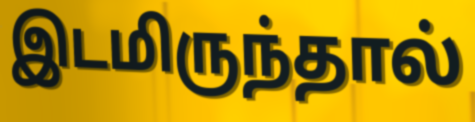
இடமிருந்தால்